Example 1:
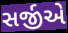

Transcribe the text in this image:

સર્જીએ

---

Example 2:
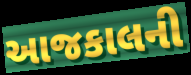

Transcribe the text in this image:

આજકાલની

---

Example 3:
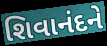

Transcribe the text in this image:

શિવાનંદને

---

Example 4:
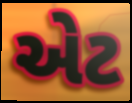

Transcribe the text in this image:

એટ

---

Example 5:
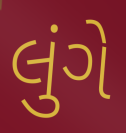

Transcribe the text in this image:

લુંગે